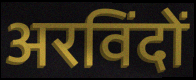
अरविंदों